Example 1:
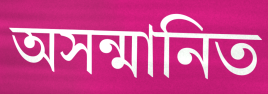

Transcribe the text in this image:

অসন্মানিত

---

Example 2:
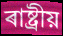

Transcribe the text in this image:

ৰাষ্ট্ৰীয়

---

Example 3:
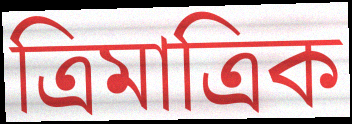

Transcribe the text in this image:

ত্ৰিমাত্ৰিক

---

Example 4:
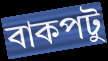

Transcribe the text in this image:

বাকপটু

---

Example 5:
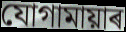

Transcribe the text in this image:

যোগামায়াৰ